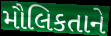
મૌલિકતાને